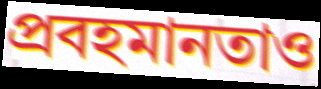
প্রবহমানতাও